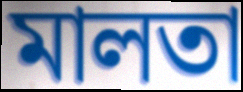
মালতা